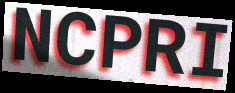
NCPRI